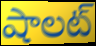
షాలట్